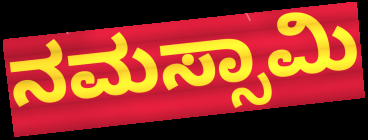
ನಮಸ್ಸಾಮಿ